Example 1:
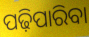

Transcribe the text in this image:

ପଢ଼ିପାରିବା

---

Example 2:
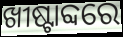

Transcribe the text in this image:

ଖୀଷ୍ଟାବ୍ଦରେ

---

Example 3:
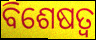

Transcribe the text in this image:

ବିଶେଷତ୍ଵ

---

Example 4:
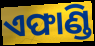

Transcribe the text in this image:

ଏଫାଣ୍ଡି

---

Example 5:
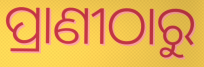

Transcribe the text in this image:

ପ୍ରାଣୀଠାରୁ